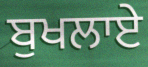
ਬੁਖਲਾਏ